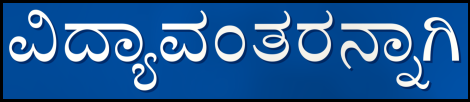
ವಿದ್ಯಾವಂತರನ್ನಾಗಿ